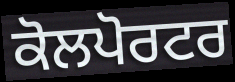
ਕੋਲਪੋਰਟਰ